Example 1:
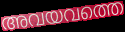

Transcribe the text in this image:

അവയവത്തെ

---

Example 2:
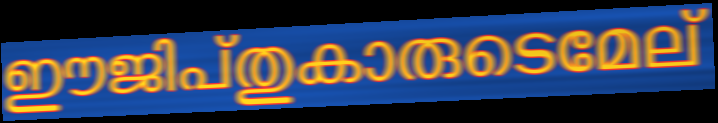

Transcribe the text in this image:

ഈജിപ്തുകാരുടെമേല്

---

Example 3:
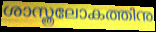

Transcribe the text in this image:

ശാസ്ത്രലോകത്തിനു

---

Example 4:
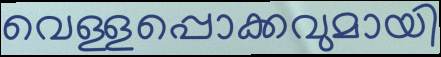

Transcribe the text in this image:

വെള്ളപ്പൊക്കവുമായി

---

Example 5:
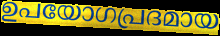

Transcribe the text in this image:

ഉപയോഗപ്രദമായ